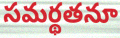
సమర్థతనూ